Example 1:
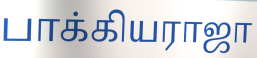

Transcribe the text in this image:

பாக்கியராஜா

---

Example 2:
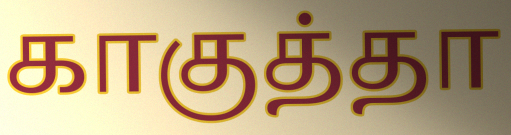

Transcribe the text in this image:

காகுத்தா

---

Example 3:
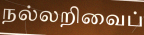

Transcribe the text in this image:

நல்லறிவைப்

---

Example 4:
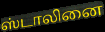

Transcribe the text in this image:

ஸ்டாலினை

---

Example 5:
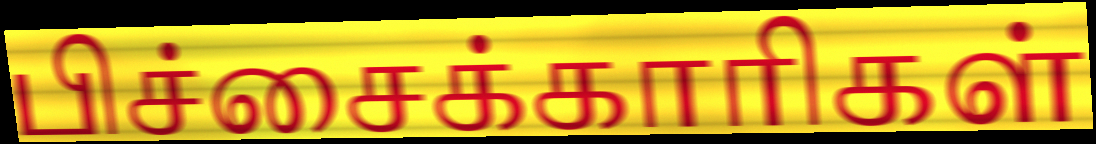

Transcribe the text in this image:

பிச்சைக்காரிகள்